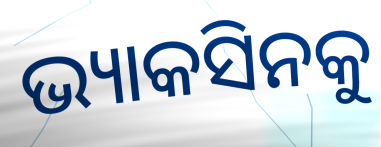
ଭ୍ୟାକସିନକୁ